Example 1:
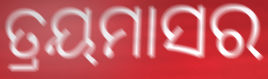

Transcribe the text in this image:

ତ୍ରୟମାସର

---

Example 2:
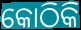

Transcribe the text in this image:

କୋଠିକି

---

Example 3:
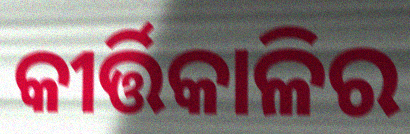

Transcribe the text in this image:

କୀର୍ତ୍ତିକାଳିର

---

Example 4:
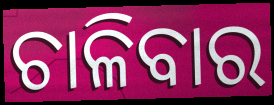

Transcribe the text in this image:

ଚାଳିବାର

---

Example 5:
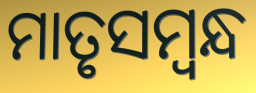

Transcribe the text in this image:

ମାତୃସମ୍ବନ୍ଧ